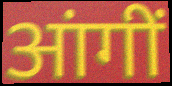
आंगीं